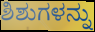
ಶಿಶುಗಳನ್ನು